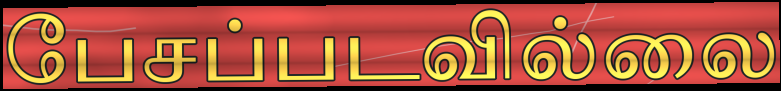
பேசப்படவில்லை